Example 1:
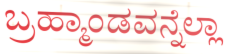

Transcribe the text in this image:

ಬ್ರಹ್ಮಾಂಡವನ್ನೆಲ್ಲಾ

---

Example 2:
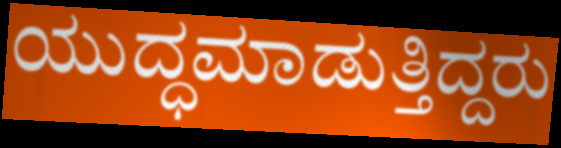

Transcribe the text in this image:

ಯುದ್ಧಮಾಡುತ್ತಿದ್ದರು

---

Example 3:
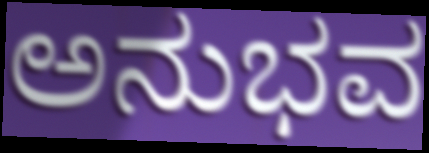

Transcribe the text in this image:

ಅನುಭವ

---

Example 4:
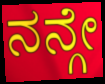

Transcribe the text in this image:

ನನ್ಗೇ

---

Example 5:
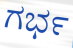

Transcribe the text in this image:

ಗರ್ಭ